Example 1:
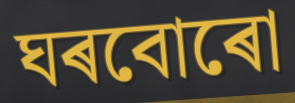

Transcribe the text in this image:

ঘৰবোৰো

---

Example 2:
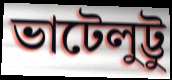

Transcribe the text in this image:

ভাটেলুট্টু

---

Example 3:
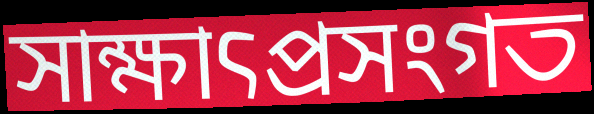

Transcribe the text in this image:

সাক্ষাৎপ্ৰসংগত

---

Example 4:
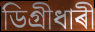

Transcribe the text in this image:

ডিগ্ৰীধাৰী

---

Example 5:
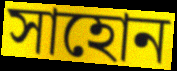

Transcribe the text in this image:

সাহোন